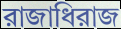
রাজাধিরাজ